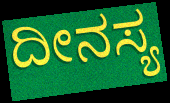
ದೀನಸ್ಯ